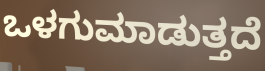
ಒಳಗುಮಾಡುತ್ತದೆ